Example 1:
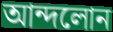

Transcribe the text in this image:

আন্দলোন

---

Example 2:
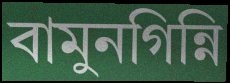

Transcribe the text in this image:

বামুনগিন্নি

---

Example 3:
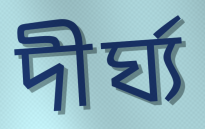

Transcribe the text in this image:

দীর্ঘ্য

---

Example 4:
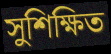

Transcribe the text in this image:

সুশিক্ষিত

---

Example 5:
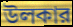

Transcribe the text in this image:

উলকার